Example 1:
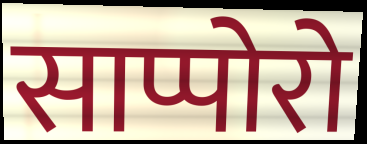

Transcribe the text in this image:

साप्पोरो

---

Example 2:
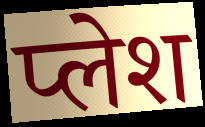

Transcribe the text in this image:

प्लेश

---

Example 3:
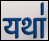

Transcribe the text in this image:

यथा॑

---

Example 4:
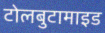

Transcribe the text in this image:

टोलबुटामाइड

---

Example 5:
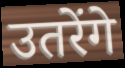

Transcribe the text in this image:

उतरेंगे